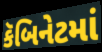
કૅબિનેટમાં